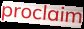
proclaim